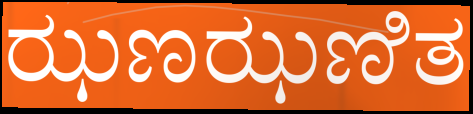
ಝಣಝಣಿತ